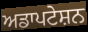
ਅਡਾਪਟੇਸ਼ਨ